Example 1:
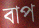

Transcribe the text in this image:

বাপ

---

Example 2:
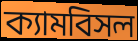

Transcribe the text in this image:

ক্যামবিসল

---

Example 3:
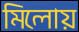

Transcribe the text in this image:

মিলোয়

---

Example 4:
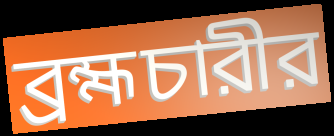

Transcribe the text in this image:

ব্রহ্মচারীর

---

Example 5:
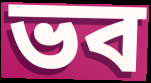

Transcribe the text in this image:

ভব